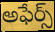
అఫేర్స్